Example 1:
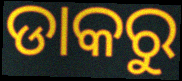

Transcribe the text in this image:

ଡାକରୁ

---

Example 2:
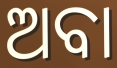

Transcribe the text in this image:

ଅବା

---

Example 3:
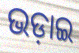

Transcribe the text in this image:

ଭଡ଼ାଇ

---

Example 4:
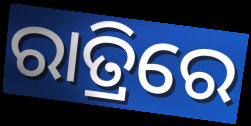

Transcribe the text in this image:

ରାତ୍ରିରେ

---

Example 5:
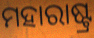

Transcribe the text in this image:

ମହାରାଷ୍ଟ୍ର